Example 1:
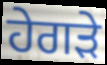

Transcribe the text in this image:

ਹੇਗੜੇ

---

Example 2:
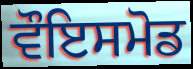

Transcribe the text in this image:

ਵੌਇਸਮੋਡ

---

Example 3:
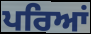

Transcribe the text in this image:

ਪਰਿਆਂ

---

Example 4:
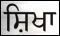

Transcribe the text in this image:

ਸ਼ਿਖਾ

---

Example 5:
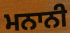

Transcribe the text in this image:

ਮਨਾਨੀ